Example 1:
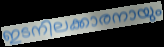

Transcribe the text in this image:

ഇടനിലക്കാരനായും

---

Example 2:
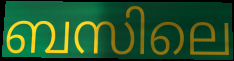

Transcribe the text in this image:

ബസിലെ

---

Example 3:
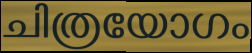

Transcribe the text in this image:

ചിത്രയോഗം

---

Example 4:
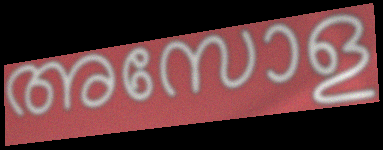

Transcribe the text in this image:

അസോള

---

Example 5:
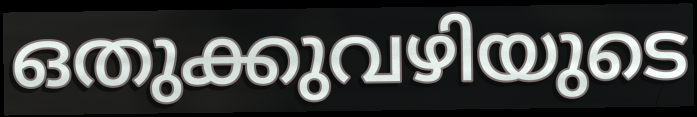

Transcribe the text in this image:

ഒതുക്കുവഴിയുടെ